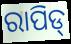
ରାପିଡ୍